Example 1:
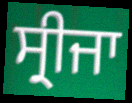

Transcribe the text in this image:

ਸ੍ਰੀਜਾ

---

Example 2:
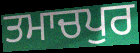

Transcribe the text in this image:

ਤਮਾਚਪੁਰ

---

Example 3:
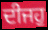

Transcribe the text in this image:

ਦੀਜਹੁ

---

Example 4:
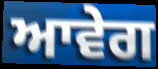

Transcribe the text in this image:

ਆਵੇਗ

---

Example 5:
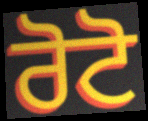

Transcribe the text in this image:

ਰੋਟੋ